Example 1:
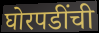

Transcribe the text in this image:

घोरपडींची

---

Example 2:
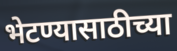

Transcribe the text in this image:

भेटण्यासाठीच्या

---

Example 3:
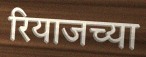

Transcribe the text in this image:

रियाजच्या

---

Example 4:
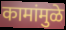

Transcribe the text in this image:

कामांमुळे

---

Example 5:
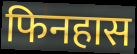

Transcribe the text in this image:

फिनहास